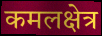
कमलक्षेत्र